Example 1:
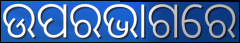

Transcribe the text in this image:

ଉପରଭାଗରେ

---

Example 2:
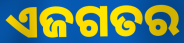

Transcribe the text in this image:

ଏଜଗତର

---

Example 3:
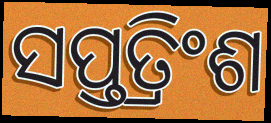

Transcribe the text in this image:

ସପ୍ତତ୍ରିଂଶ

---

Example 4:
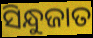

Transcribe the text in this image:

ସିନ୍ଧୁଜାତ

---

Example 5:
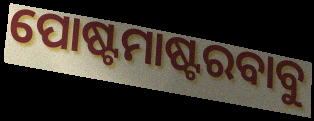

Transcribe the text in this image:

ପୋଷ୍ଟମାଷ୍ଟରବାବୁ